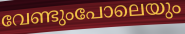
വേണ്ടുംപോലെയും